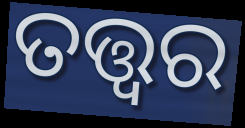
ତତ୍ତ୍ବର